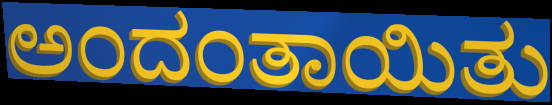
ಅಂದಂತಾಯಿತು